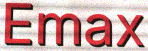
Emax